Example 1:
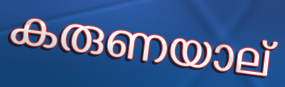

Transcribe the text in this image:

കരുണയാല്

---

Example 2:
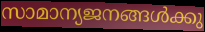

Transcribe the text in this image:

സാമാന്യജനങ്ങൾക്കു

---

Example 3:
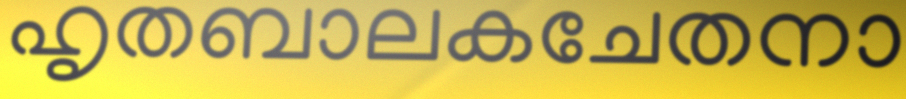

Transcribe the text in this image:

ഹൃതബാലകചേതനാ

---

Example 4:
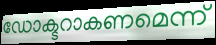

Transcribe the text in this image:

ഡോക്ടറാകണമെന്ന്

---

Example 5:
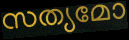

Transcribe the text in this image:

സത്യമോ